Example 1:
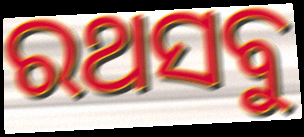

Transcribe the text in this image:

ରଥସବୁ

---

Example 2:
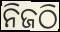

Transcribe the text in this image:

ନିଜଠି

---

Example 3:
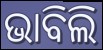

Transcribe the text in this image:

ଭାବିଲି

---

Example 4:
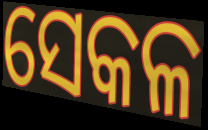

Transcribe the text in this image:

ସେକଳ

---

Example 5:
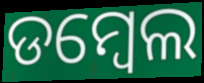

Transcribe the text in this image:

ଡମ୍ୱେଲ